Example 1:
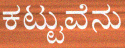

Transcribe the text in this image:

ಕಟ್ಟುವೆನು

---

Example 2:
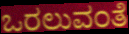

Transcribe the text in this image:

ಒರಲುವಂತೆ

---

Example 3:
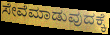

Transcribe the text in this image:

ಸೇವೆಮಾಡುವುದಕ್ಕೆ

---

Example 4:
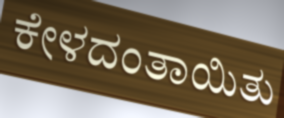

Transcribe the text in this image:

ಕೇಳದಂತಾಯಿತು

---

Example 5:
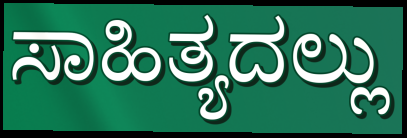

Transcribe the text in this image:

ಸಾಹಿತ್ಯದಲ್ಲು